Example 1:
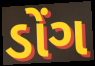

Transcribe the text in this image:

ડોંગ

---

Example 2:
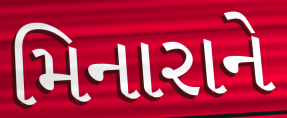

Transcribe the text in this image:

મિનારાને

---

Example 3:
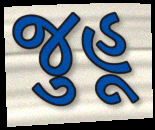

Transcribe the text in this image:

જુહૂ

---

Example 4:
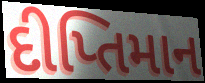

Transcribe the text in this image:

દીપ્તિમાન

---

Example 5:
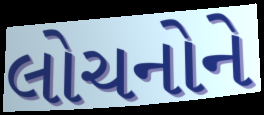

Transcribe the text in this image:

લોચનોને